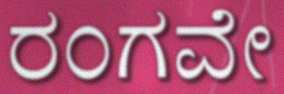
ರಂಗವೇ